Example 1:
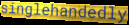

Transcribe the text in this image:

singlehandedly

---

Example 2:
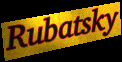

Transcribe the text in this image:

Rubatsky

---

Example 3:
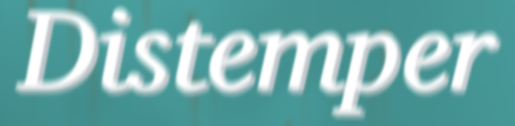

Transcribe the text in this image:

Distemper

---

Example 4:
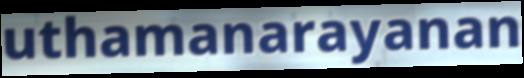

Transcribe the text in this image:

uthamanarayanan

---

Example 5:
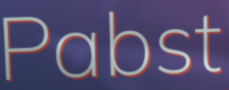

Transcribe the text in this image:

Pabst